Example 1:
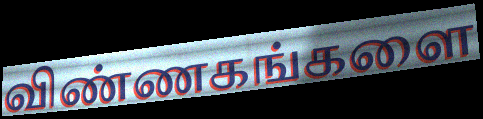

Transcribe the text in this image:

விண்ணகங்களை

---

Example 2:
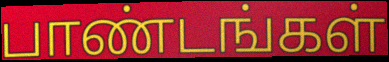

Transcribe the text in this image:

பாண்டங்கள்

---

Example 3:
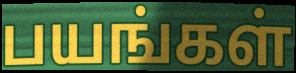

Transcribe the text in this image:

பயங்கள்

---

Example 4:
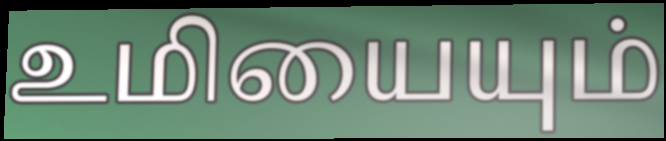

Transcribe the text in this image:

உமியையும்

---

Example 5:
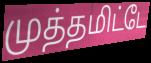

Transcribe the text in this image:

முத்தமிட்டே